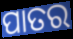
ପାତର